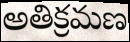
అతిక్రమణ